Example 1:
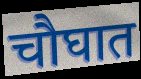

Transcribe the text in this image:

चौघात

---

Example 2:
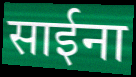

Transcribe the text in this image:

साईना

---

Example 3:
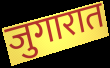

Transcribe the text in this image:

जुगारात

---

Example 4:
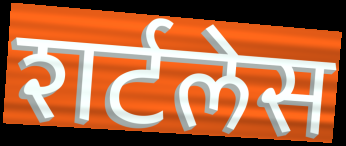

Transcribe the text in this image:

शर्टलेस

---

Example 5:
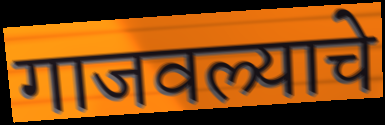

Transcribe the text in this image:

गाजवल्याचे